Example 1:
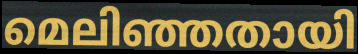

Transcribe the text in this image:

മെലിഞ്ഞതായി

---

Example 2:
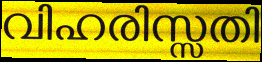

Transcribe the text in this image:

വിഹരിസ്സതി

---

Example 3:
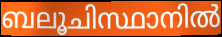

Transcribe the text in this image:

ബലൂചിസ്ഥാനിൽ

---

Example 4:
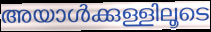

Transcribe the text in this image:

അയാൾക്കുള്ളിലൂടെ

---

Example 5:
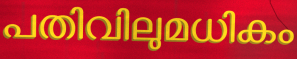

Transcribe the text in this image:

പതിവിലുമധികം